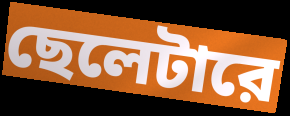
ছেলেটারে